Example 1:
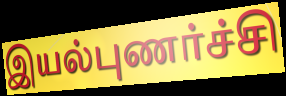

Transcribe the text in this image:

இயல்புணர்ச்சி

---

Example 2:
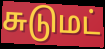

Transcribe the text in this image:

சுடுமட்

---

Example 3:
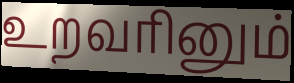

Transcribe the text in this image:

உறவரினும்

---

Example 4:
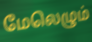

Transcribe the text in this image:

மேலெழும்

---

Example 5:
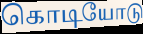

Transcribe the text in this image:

கொடியோடு